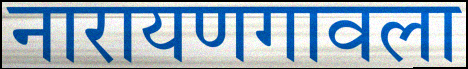
नारायणगावला